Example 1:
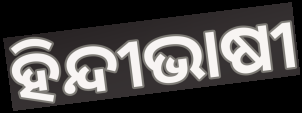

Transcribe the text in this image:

ହିନ୍ଦୀଭାଷୀ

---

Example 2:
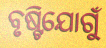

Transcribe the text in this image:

ବୃଷ୍ଟିଯୋଗୁଁ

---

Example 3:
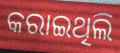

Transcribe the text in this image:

କରାଇଥିଲି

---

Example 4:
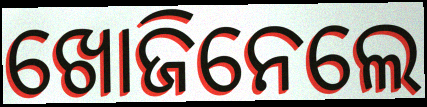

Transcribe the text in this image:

ଖୋଜିନେଲେ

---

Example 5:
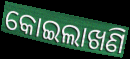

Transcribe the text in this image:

କୋଇଲାଖଣି